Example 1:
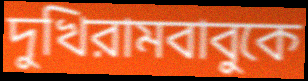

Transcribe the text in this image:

দুখিরামবাবুকে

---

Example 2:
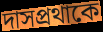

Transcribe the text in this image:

দাসপ্রথাকে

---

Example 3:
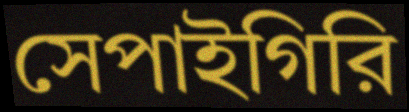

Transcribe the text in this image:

সেপাইগিরি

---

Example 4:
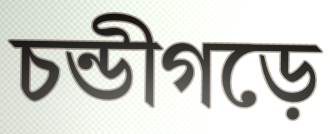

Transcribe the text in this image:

চন্ডীগড়ে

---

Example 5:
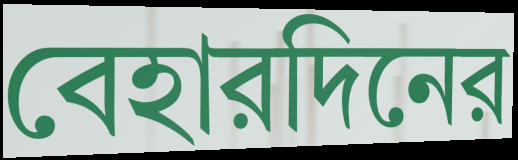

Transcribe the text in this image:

বেহারদিনের